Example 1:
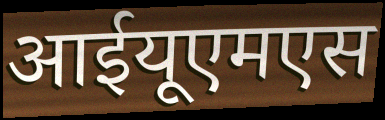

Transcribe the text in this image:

आईयूएमएस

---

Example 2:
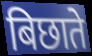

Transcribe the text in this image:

बिछाते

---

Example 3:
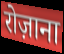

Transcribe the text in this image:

रोज़ाना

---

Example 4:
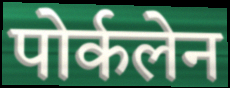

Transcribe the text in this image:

पोर्कलेन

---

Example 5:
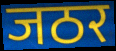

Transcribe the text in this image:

जठर